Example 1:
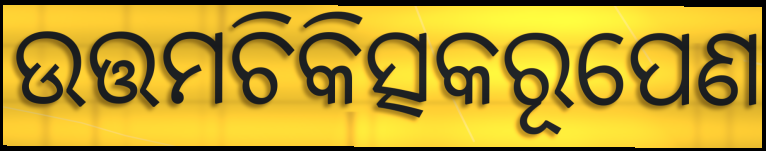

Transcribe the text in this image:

ଉତ୍ତମଚିକିତ୍ସକରୂପେଣ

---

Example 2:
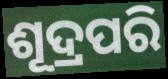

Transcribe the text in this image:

ଶୂଦ୍ରପରି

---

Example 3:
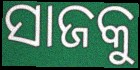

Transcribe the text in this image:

ସାଜକୁ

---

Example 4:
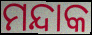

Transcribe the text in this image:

ମନ୍ଦାକ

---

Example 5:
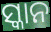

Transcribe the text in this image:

ସ୍କାନ